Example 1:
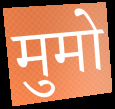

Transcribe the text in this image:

मुमो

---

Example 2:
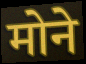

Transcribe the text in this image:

मोने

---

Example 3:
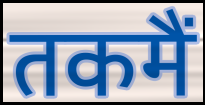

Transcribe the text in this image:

तकमैं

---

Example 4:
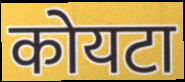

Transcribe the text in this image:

कोयटा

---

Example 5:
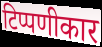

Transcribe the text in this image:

टिप्पणीकार